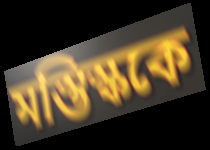
মস্তিস্ককে